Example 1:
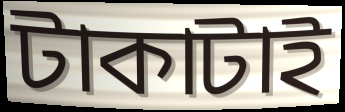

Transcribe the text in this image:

টাকাটাই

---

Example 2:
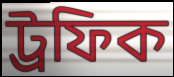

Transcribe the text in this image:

ট্রফিক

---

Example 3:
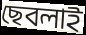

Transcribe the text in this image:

ছেবলাই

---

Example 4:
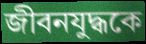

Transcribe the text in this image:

জীবনযুদ্ধকে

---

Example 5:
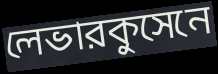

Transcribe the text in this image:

লেভারকুসেনে